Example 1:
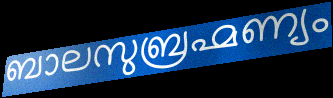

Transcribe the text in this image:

ബാലസുബ്രഹ്മണ്യം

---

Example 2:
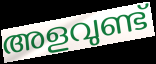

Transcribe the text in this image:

അളവുണ്ട്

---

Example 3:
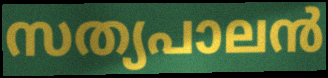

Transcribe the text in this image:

സത്യപാലൻ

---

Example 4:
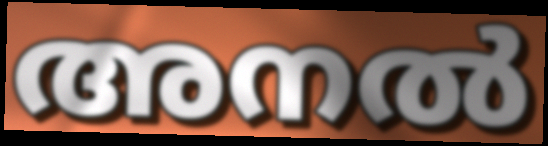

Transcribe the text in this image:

അനൽ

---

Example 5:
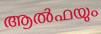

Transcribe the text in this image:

ആൽഫയും